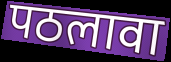
पठलावा